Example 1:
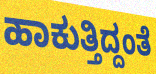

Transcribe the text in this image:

ಹಾಕುತ್ತಿದ್ದಂತೆ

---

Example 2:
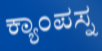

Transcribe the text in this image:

ಕ್ಯಾಂಪಸ್ನ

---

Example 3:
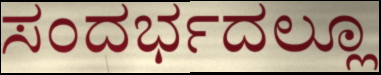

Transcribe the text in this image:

ಸಂದರ್ಭದಲ್ಲೂ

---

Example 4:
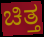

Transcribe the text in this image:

ಚಿತ್ತ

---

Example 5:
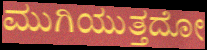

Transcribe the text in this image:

ಮುಗಿಯುತ್ತದೋ